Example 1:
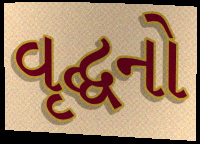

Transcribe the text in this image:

વૃદ્ઘનો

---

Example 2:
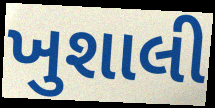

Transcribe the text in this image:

ખુશાલી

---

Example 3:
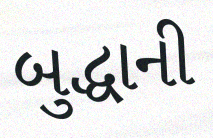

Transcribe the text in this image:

બુદ્ધાની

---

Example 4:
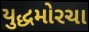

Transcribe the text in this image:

યુદ્ધમોરચા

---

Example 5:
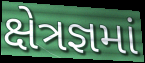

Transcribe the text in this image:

ક્ષેત્રજ્ઞમાં